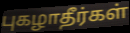
புகழாதீர்கள்